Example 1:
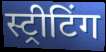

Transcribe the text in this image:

स्ट्रीटिंग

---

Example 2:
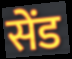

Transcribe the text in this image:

सेंड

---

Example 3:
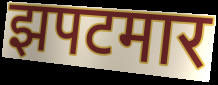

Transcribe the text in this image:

झपटमार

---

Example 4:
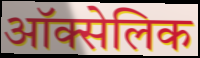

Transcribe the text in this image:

ऑक्सेलिक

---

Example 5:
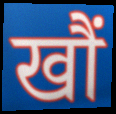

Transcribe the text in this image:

खौं